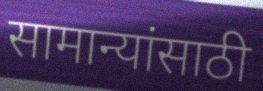
सामान्यांसाठी